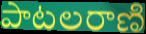
పాటలరాణి